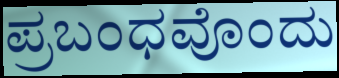
ಪ್ರಬಂಧವೊಂದು